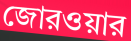
জোরওয়ার